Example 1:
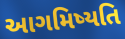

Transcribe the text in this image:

આગમિષ્યતિ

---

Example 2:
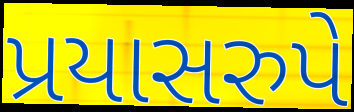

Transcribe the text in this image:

પ્રયાસરુપે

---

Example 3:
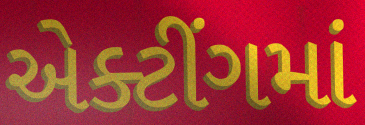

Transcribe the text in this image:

એક્ટીંગમાં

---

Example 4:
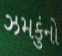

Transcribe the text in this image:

ઝમકુંનો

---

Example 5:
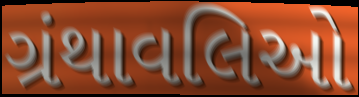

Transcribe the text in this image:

ગ્રંથાવલિઓ